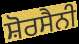
ਸ਼ੋਰਸੈਨੀ